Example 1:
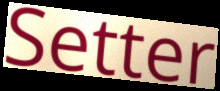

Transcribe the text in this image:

Setter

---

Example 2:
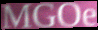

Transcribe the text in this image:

MGOe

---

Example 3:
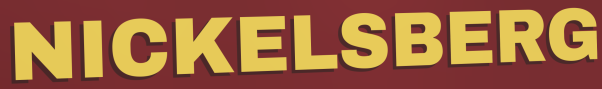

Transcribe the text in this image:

NICKELSBERG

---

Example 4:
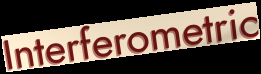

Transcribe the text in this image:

Interferometric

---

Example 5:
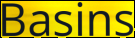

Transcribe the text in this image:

Basins